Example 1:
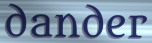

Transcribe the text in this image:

dander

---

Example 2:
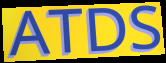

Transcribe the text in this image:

ATDS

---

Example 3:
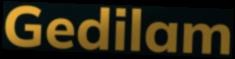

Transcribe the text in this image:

Gedilam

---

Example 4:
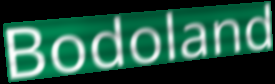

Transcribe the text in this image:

Bodoland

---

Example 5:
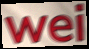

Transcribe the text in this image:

wei